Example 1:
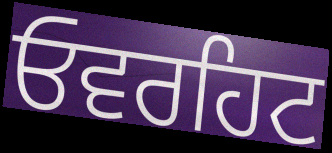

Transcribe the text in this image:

ਓਵਰਹਿਟ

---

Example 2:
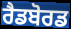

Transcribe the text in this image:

ਰੈਡਬੋਰਡ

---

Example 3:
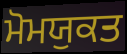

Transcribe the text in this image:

ਮੋਮਯੁਕਤ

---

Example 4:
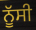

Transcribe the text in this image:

ਨੂੱਸੀ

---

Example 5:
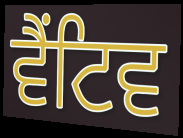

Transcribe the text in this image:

ਵੈਂਟਿਵ